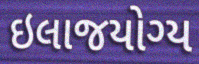
ઇલાજયોગ્ય